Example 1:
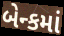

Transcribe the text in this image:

બેન્કમાં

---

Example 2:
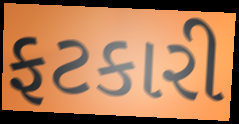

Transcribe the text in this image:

ફટકારી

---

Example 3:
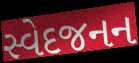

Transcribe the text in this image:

સ્વેદજનન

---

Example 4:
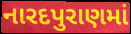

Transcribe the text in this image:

નારદપુરાણમાં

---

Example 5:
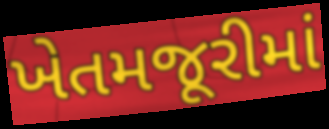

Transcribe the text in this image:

ખેતમજૂરીમાં